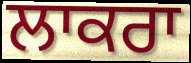
ਲਾਕਰਾ